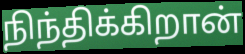
நிந்திக்கிறான்